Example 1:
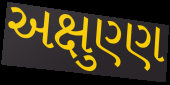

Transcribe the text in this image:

અક્ષુણ્ણ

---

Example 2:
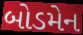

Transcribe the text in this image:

બોડમેન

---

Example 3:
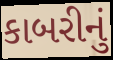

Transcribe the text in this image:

કાબરીનું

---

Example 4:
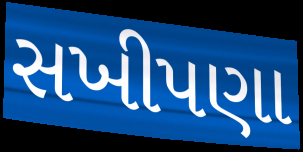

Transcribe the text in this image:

સખીપણા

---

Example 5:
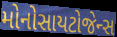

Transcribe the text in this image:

મોનોસાયટોજેન્સ